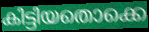
കിട്ടിയതൊക്കെ